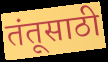
तंतूसाठी